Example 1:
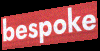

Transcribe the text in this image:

bespoke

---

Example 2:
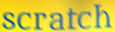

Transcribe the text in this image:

scratch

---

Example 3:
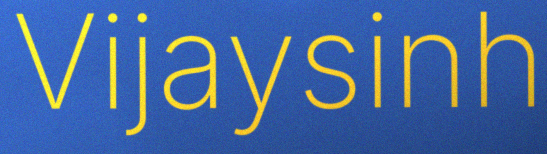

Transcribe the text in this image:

Vijaysinh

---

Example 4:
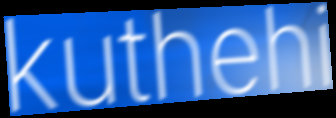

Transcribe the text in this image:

kuthehi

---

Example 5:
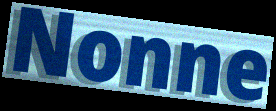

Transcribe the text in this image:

Nonne